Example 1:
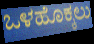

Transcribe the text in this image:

ಒಳಹೊಕ್ಕಲು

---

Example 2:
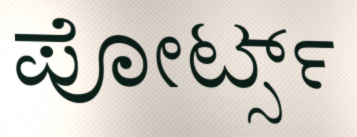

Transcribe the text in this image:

ಪೋರ್ಟ್ಸ್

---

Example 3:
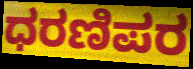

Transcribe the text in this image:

ಧರಣಿಪರ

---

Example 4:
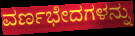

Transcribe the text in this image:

ವರ್ಣಭೇದಗಳನ್ನು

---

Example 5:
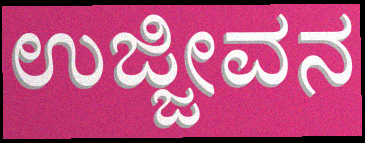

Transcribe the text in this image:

ಉಜ್ಜೀವನ